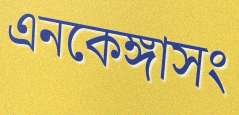
এনকেঙ্গাসং